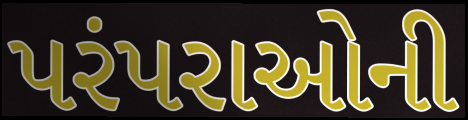
પરંપરાઓની